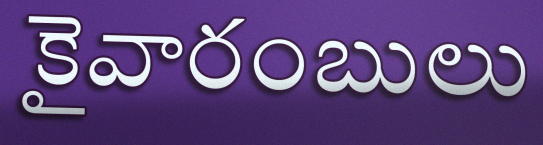
కైవారంబులు